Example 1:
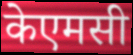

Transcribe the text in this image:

केएमसी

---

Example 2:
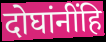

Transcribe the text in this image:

दोघांनींहि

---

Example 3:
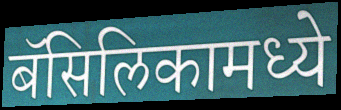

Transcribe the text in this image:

बॅसिलिकामध्ये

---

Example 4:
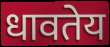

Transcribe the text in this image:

धावतेय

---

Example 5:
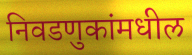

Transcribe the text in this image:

निवडणुकांमधील